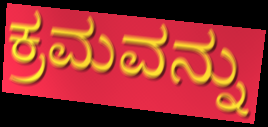
ಕ್ರಮವನ್ನು